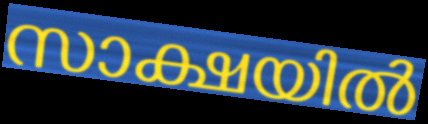
സാക്ഷയിൽ